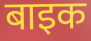
बाइक